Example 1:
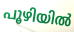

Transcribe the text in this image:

പൂഴിയിൽ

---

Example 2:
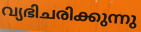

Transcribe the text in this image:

വ്യഭിചരിക്കുന്നു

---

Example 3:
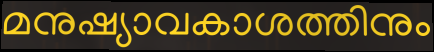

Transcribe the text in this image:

മനുഷ്യാവകാശത്തിനും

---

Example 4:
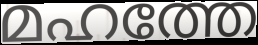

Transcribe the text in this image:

മഹത്തേ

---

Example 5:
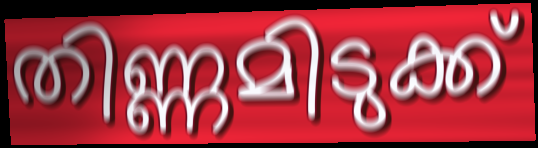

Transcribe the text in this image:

തിണ്ണമിടുക്ക്